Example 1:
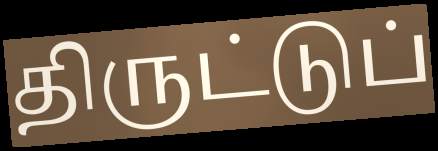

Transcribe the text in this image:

திருட்டுப்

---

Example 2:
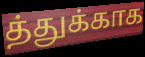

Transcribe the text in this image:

த்துக்காக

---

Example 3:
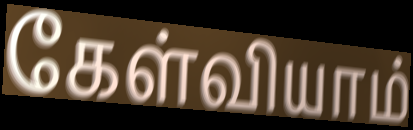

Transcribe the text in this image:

கேள்வியாம்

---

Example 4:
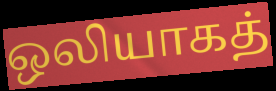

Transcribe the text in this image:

ஒலியாகத்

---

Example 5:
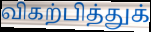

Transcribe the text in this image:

விகற்பித்துக்